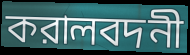
করালবদনী